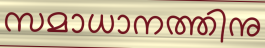
സമാധാനത്തിനു